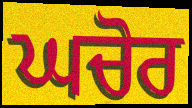
ਘਚੋਰ